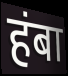
हंबा